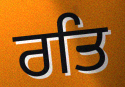
ਰਤਿ